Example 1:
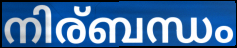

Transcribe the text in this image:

നിര്ബന്ധം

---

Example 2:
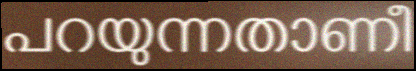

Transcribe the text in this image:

പറയുന്നതാണീ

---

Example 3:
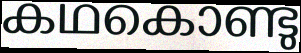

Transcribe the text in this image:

കഥകൊണ്ടു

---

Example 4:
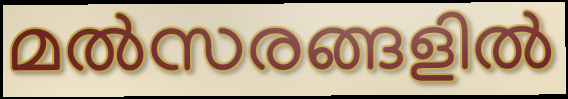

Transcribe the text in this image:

മൽസരങ്ങളിൽ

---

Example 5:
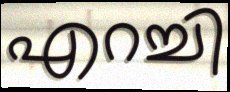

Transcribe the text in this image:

എറച്ചി